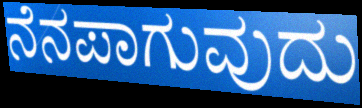
ನೆನಪಾಗುವುದು